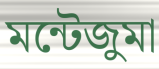
মন্টেজুমা